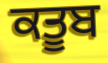
ਕਤੂਬ